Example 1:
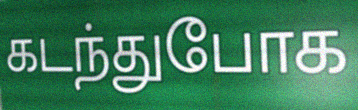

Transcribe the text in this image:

கடந்துபோக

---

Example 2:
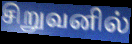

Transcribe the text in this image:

சிறுவனில்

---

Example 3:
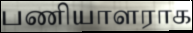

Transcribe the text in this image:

பணியாளராக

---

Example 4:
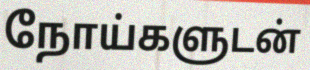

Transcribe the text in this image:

நோய்களுடன்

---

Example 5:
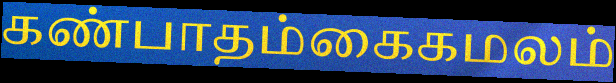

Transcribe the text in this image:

கண்பாதம்கைகமலம்